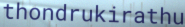
thondrukirathu